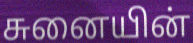
சுனையின்